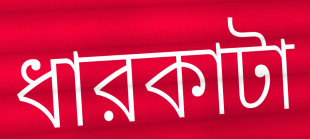
ধারকাটা